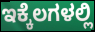
ಇಕ್ಕೆಲಗಳಲ್ಲಿ